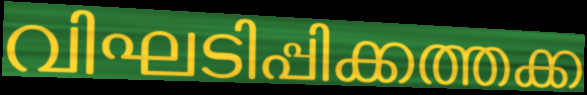
വിഘടിപ്പിക്കത്തക്ക